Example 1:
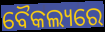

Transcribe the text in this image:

ବୈକଲ୍ୟରେ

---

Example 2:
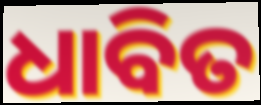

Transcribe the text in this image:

ଧାବିତ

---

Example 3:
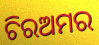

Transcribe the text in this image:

ଚିରଅମର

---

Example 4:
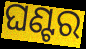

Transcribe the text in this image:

ଘଣ୍ଟର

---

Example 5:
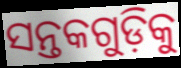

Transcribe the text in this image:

ସନ୍ତକଗୁଡ଼ିକୁ